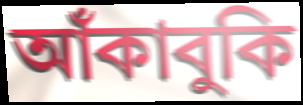
আঁকাবুকি